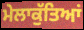
ਮੇਲਾਕੁੱਤਿਆਂ